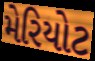
મેરિયોટ